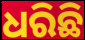
ଧରିଛି